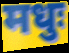
मधुः